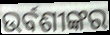
ଉର୍ବଶୀଙ୍କର